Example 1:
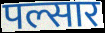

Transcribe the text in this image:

पल्सार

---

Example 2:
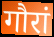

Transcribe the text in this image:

गौरां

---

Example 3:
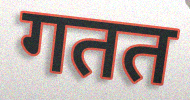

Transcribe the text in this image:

गतत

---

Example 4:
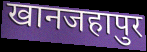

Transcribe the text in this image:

खानजहापुर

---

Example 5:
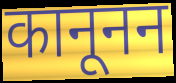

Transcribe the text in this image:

कानूनन